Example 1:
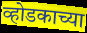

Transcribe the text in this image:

व्होडकाच्या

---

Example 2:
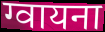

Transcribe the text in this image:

ग्वायना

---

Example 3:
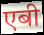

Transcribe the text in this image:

एबी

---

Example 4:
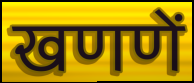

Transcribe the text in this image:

खणणें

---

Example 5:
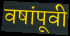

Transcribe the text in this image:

वषांपूवी